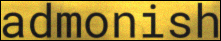
admonish